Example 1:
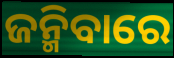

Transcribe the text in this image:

ଜନ୍ମିବାରେ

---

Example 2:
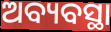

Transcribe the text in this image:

ଅବ୍ୟବସ୍ଥା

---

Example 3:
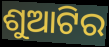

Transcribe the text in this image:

ଶୁଆଟିର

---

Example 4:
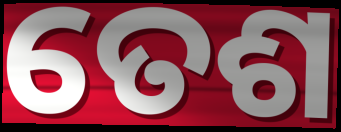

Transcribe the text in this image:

ତେଶ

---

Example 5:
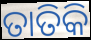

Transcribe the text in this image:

ତାତିକି